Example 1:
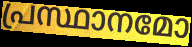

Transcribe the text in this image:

പ്രസ്ഥാനമോ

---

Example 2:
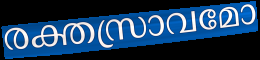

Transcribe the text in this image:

രക്തസ്രാവമോ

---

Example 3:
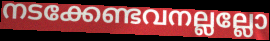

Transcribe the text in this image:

നടക്കേണ്ടവനല്ലല്ലോ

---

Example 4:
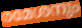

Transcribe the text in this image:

രമേശനും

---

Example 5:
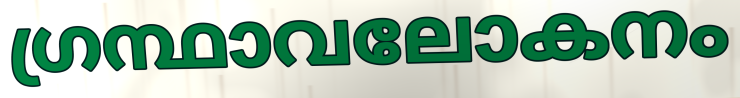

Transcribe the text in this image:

ഗ്രന്ഥാവലോകനം